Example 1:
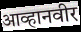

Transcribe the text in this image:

आव्हानवीर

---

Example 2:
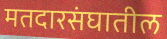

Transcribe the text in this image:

मतदारसंघातील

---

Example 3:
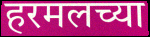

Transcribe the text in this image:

हरमलच्या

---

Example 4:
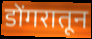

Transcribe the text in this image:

डोंगरातून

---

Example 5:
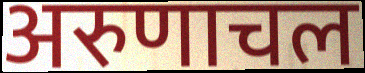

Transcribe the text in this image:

अरुणाचल